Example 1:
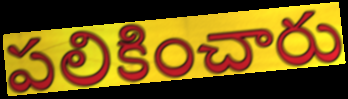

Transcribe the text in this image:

పలికించారు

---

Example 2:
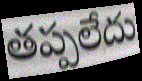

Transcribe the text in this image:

తప్పలేదు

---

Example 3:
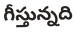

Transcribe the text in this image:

గీస్తున్నది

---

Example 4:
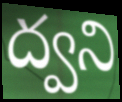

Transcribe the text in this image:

ద్వని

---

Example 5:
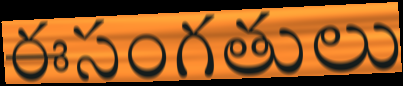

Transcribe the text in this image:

ఈసంగతులు